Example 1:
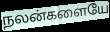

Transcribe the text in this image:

நலன்களையே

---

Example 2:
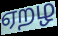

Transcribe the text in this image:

ஏறழ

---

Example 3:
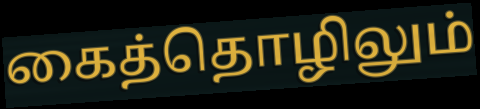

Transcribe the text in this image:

கைத்தொழிலும்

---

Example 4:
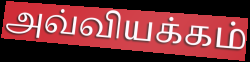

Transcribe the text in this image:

அவ்வியக்கம்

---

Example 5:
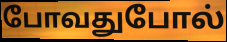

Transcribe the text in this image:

போவதுபோல்